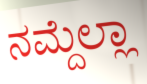
ನಮ್ದೆಲ್ಲಾ